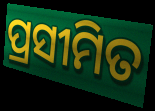
ପ୍ରସୀମିତ